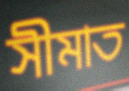
সীমাত